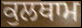
ਕੁਲਥਾਮ